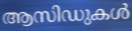
ആസിഡുകൾ